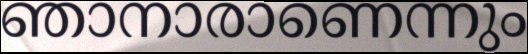
ഞാനാരാണെന്നും